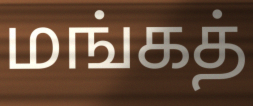
மங்கத்